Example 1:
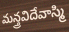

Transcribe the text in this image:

మన్త్రవిదేవాస్మి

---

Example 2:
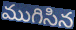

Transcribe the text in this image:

ముగిసిన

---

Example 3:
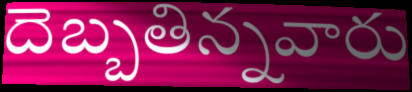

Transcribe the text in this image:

దెబ్బతిన్నవారు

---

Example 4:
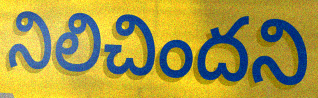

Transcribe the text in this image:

నిలిచిందని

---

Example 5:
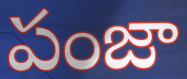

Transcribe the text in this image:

పంజా